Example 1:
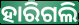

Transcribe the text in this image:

ହାରିଗଲି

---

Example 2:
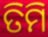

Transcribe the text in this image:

ତିମି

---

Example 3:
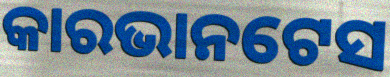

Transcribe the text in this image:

କାରଭାନଟେସ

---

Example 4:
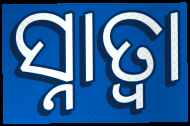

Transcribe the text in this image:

ସ୍ନାତ୍ବା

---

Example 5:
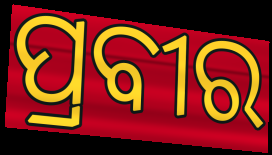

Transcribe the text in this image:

ପ୍ରବୀର